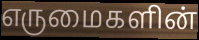
எருமைகளின்